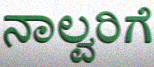
ನಾಲ್ವರಿಗೆ